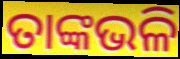
ତାଙ୍କଭଳି